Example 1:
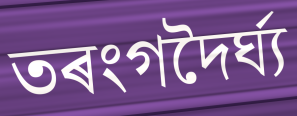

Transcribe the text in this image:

তৰংগদৈৰ্ঘ্য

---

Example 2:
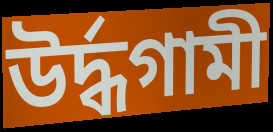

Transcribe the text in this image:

উৰ্দ্ধগামী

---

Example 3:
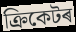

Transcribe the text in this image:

ক্ৰিকেটৰ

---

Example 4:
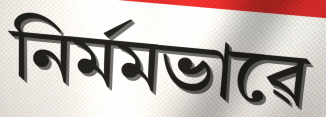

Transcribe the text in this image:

নিৰ্মমভাৱে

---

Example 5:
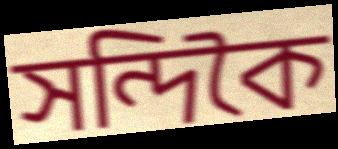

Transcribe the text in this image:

সন্দিকৈ